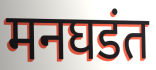
मनघडंत